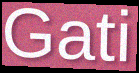
Gati